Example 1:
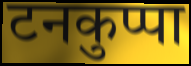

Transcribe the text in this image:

टनकुप्पा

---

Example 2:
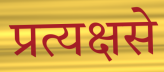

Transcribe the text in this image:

प्रत्यक्षसे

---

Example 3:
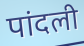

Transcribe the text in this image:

पांदली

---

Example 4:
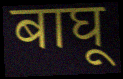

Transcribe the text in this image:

बाघू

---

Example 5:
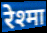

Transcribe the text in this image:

रेश्मा